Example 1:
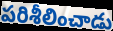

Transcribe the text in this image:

పరిశీలించాడు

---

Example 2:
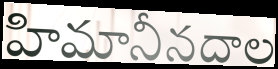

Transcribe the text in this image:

హిమానీనదాల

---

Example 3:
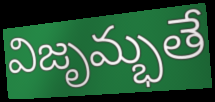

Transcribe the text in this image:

విజృమ్భతే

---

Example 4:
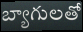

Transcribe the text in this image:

బ్యాగులతో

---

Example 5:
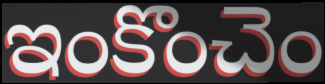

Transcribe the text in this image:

ఇంకొంచెం